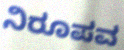
ನಿರೂಪವ